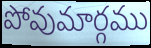
పోవుమార్గము